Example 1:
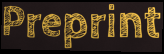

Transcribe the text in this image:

Preprint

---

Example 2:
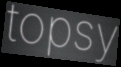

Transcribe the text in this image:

topsy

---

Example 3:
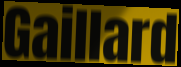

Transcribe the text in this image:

Gaillard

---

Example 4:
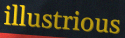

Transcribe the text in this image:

illustrious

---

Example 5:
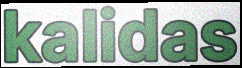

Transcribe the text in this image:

kalidas